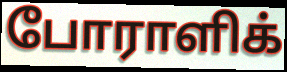
போராளிக்